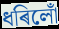
ধৰিলোঁ